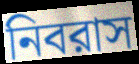
নিবরাস